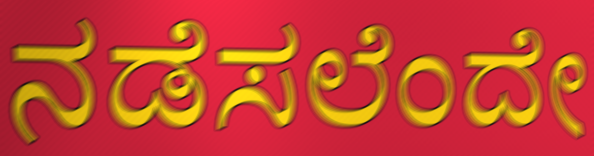
ನಡೆಸಲೆಂದೇ